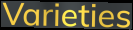
Varieties